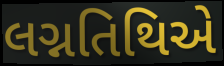
લગ્નતિથિએ